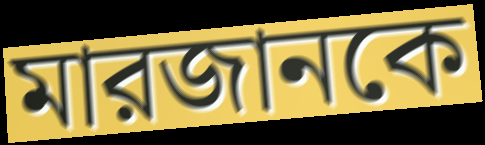
মারজানকে